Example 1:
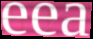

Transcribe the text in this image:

eea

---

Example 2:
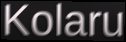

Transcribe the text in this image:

Kolaru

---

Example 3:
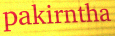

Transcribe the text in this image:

pakirntha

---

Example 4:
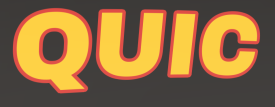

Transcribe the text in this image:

QUIC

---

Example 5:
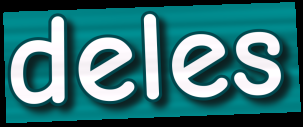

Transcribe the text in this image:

deles